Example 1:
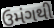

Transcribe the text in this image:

ઉમંગથી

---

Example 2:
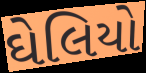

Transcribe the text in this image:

ઘેલિયો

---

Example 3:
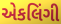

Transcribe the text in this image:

એકલિંગી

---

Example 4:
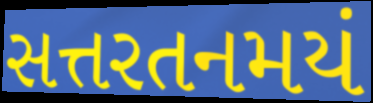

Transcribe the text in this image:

સત્તરતનમયં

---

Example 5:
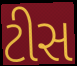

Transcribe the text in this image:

ટીસ